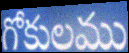
గోకులము